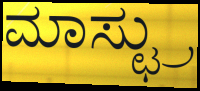
ಮಾಸ್ಟ್ರು